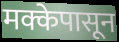
मक्केपासून